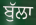
ਬੁੱਲਾ